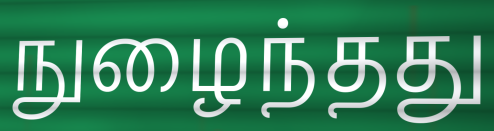
நுழைந்தது